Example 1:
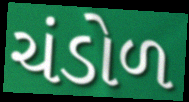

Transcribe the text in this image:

ચંડોળ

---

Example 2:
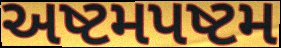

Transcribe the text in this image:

અષ્ટમપષ્ટમ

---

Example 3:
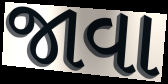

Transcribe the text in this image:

જાવા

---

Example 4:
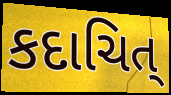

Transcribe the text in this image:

કદાચિત્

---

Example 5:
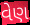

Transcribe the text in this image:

વેણ